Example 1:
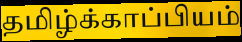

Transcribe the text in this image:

தமிழ்க்காப்பியம்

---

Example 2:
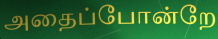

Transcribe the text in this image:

அதைப்போன்றே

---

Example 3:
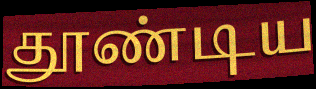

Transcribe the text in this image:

தூண்டிய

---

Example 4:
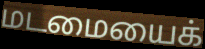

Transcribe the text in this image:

மடமையைக்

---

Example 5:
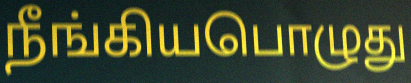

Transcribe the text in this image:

நீங்கியபொழுது